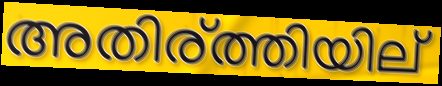
അതിര്ത്തിയില്